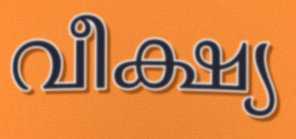
വീക്ഷ്യ